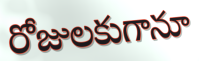
రోజులకుగానూ